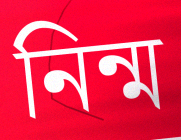
নিন্ম